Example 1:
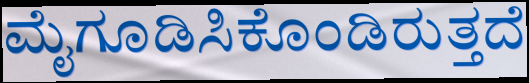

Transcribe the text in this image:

ಮೈಗೂಡಿಸಿಕೊಂಡಿರುತ್ತದೆ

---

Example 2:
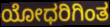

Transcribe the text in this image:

ಯೋಧರಿಗಿಂತ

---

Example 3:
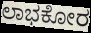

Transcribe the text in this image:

ಲಾಭಕೋರ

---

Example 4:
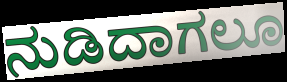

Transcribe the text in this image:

ನುಡಿದಾಗಲೂ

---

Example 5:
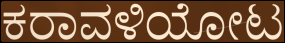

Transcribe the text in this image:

ಕರಾವಳಿಯೋಟ